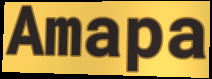
Amapa